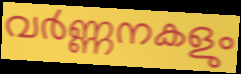
വർണ്ണനകളും